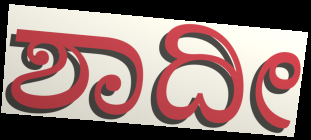
ಶಾದೀ